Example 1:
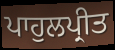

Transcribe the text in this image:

ਪਾਹੁਲਪ੍ਰੀਤ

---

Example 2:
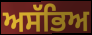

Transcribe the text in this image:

ਅਸੱਭਿਅ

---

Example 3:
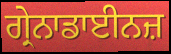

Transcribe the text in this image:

ਗ੍ਰੇਨਾਡਾਈਨਜ਼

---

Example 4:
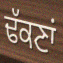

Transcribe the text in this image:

ਢੱਕਣਾਂ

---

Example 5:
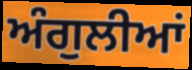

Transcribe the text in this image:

ਅੰਗੁਲੀਆਂ